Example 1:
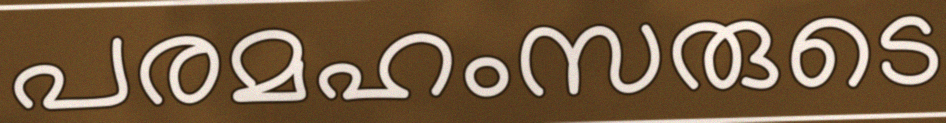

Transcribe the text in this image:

പരമഹംസരുടെ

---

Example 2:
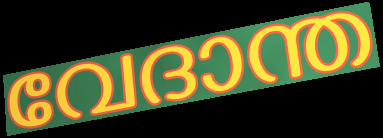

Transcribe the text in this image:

വേദാന്ത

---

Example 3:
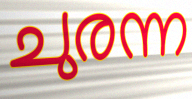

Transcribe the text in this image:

ചുരന്ന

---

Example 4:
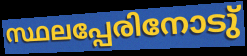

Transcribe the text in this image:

സ്ഥലപ്പേരിനോടു്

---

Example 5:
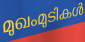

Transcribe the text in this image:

മുഖംമുടികൾ